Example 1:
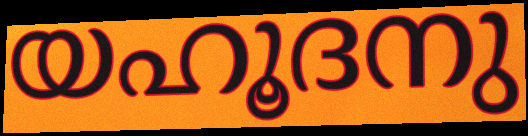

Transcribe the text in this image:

യഹൂദനു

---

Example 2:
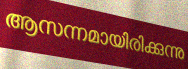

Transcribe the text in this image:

ആസന്നമായിരിക്കുന്നു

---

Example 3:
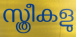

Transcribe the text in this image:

സ്ത്രീകളു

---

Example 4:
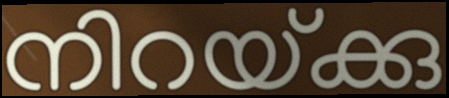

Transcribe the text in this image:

നിറയ്‌ക്കു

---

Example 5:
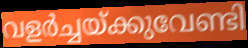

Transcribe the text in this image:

വളർച്ചയ്ക്കുവേണ്ടി